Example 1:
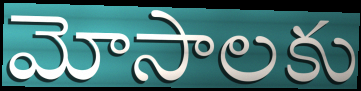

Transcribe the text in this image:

మోసాలకు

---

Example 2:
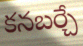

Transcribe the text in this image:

కనబర్చే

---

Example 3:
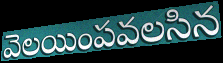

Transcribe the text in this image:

వెలయింపవలసిన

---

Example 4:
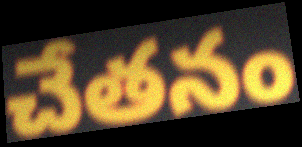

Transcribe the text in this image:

చేతనం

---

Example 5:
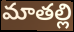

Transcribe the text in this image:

మాతల్లి